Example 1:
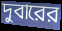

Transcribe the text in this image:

দুবারের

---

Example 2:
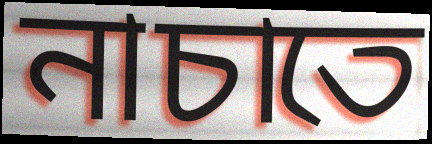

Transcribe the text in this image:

নাচাতে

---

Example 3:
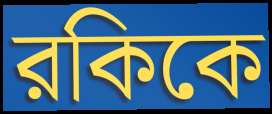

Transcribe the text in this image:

রকিকে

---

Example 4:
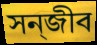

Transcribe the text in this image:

সন্জীব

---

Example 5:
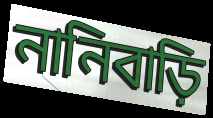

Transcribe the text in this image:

নানিবাড়ি